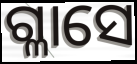
ଗ୍ଳାସେ